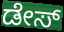
ಡೇಸ್